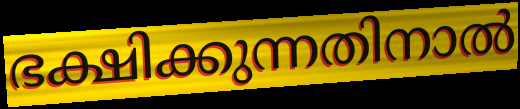
ഭക്ഷിക്കുന്നതിനാൽ